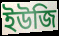
ইউজি